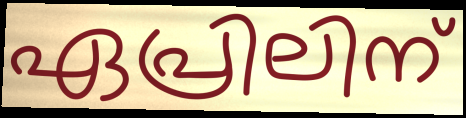
ഏപ്രിലിന്